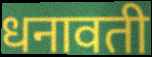
धनावती